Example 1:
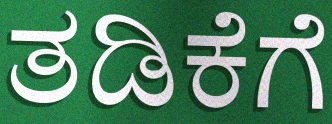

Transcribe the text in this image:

ತಡಿಕೆಗೆ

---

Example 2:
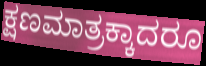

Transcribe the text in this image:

ಕ್ಷಣಮಾತ್ರಕ್ಕಾದರೂ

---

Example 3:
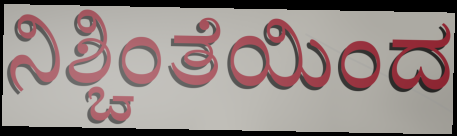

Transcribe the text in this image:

ನಿಶ್ಚಿಂತೆಯಿಂದ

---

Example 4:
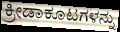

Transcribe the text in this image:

ಕ್ರೀಡಾಕೂಟಗಳನ್ನು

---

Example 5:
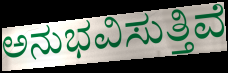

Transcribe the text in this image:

ಅನುಭವಿಸುತ್ತಿವೆ